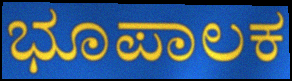
ಭೂಪಾಲಕ